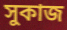
সুকাজ